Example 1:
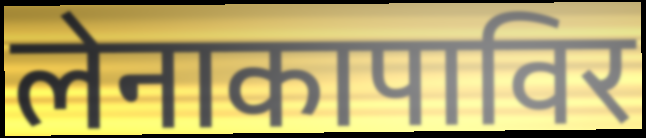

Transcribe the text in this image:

लेनाकापाविर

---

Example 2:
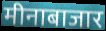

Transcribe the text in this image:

मीनाबाजार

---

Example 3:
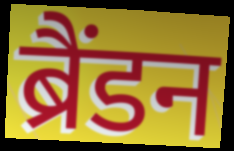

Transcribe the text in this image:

ब्रैंडन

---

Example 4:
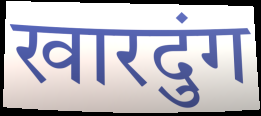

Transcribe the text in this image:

खारदुंग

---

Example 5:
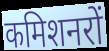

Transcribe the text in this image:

कमिशनरों